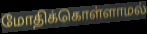
மோதிக்கொள்ளாமல்